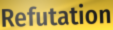
Refutation